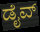
ಡೈವ್